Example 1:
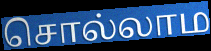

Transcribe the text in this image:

சொல்லாம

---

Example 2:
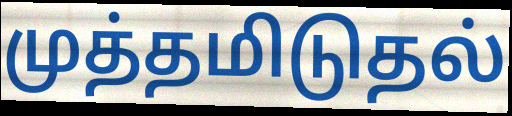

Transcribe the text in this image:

முத்தமிடுதல்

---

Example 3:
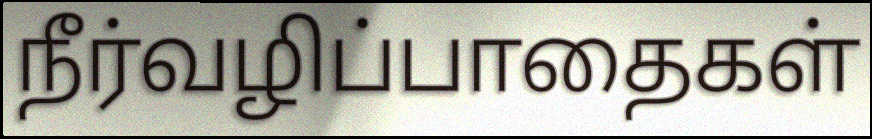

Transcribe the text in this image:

நீர்வழிப்பாதைகள்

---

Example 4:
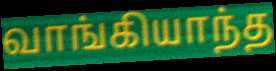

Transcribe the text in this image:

வாங்கியாந்த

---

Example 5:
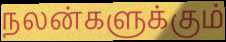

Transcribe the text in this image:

நலன்களுக்கும்